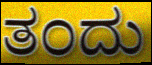
ತಂದು